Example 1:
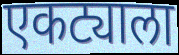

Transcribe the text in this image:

एकट्याला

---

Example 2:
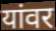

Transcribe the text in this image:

यांवर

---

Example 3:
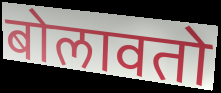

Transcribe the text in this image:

बोलावतो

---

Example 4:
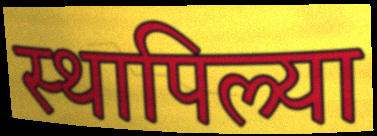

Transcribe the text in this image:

स्थापिल्या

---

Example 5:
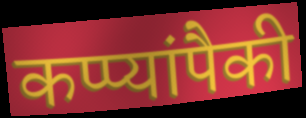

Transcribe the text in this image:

कप्प्यांपैकी